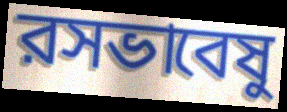
রসভাবেষু